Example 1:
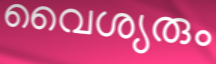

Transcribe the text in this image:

വൈശ്യരും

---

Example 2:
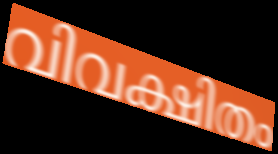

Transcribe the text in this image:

വിവക്ഷിതം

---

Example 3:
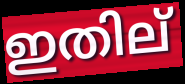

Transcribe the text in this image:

ഇതില്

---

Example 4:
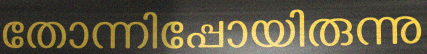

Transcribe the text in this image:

തോന്നിപ്പോയിരുന്നു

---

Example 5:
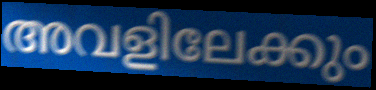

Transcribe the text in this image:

അവളിലേക്കും